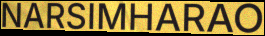
NARSIMHARAO